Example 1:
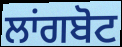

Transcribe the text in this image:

ਲਾਂਗਬੋਟ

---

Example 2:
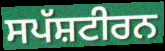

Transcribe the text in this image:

ਸਪੱਸ਼ਟੀਰਨ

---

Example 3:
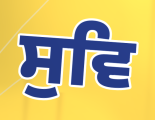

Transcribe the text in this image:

ਸੁਵਿ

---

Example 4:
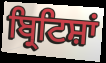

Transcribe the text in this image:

ਬ੍ਰਿਟਿਸ਼ਾਂ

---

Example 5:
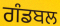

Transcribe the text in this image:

ਗੰਡਬਲ